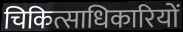
चिकित्साधिकारियों